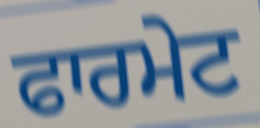
ਫਾਰਮੇਟ